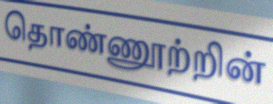
தொண்ணூற்றின்